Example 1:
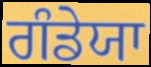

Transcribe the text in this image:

ਗੰਡੇਯਾ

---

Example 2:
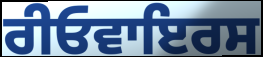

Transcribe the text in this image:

ਰੀਓਵਾਇਰਸ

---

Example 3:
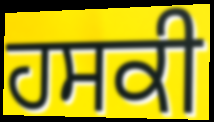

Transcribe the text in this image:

ਹਸਕੀ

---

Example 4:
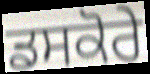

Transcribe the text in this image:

ਡਸਕੋਰੇ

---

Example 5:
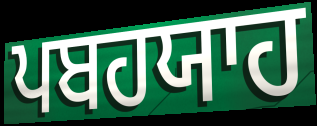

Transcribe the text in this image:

ਪਬਹਯਾਹ